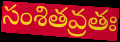
సంశితవ్రతః